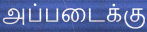
அப்படைக்கு